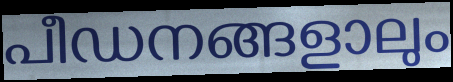
പീഡനങ്ങളാലും